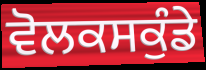
ਵੋਲਕਸਕੁੰਡੇ